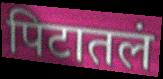
पिटातलं